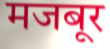
मजबूर